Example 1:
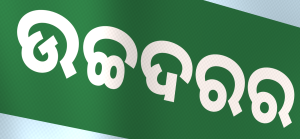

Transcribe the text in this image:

ଉଚ୍ଚଦରର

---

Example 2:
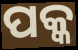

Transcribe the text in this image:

ପକ୍କ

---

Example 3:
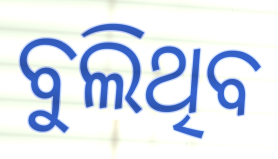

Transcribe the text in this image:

ବୁଲିଥିବ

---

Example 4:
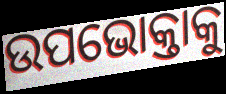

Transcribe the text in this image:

ଉପଭୋକ୍ତାକୁ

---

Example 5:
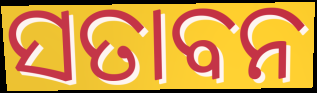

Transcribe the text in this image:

ସତାବନ